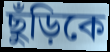
ছুঁড়িকে